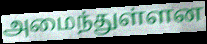
அமைந்துள்ளன